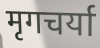
मृगचर्या